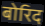
बोरिद